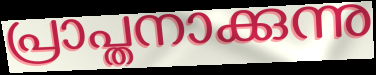
പ്രാപ്തനാക്കുന്നു